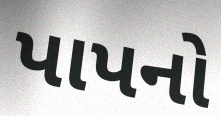
પાપનો